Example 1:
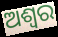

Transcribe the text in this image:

ଅଶ୍ୱର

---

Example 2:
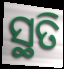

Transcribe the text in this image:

ସ୍ଥତି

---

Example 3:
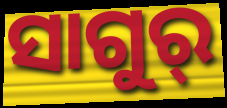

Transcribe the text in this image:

ସାଗୁର୍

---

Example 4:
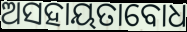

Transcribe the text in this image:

ଅସହାୟତାବୋଧ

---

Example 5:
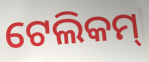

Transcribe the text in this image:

ଟେଲିକମ୍